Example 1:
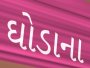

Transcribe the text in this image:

ઘોડાના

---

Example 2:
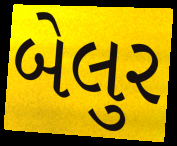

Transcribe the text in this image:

બેલુર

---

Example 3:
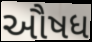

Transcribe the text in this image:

ઔષધ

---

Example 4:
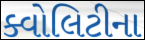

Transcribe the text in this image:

ક્વોલિટીના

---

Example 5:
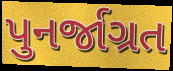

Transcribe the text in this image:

પુનર્જાગ્રત